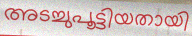
അടച്ചുപൂട്ടിയതായി